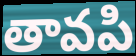
తావపి